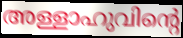
അള്ളാഹുവിന്റെ